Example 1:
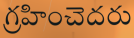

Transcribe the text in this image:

గ్రహించెదరు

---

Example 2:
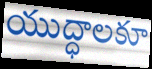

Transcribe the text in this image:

యుద్ధాలకూ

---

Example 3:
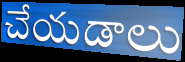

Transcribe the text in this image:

చేయడాలు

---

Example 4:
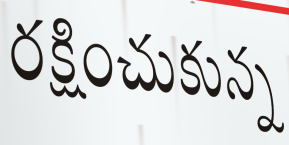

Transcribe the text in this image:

రక్షించుకున్న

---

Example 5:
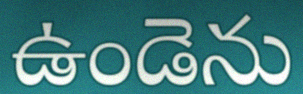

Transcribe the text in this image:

ఉండెను